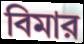
বিমার